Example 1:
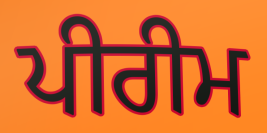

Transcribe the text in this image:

ਪੀਰੀਮ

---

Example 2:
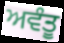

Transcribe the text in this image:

ਅਵੰਤੂ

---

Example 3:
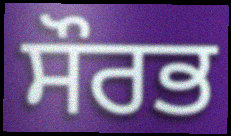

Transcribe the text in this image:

ਸੌਰਭ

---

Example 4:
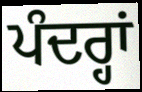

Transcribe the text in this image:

ਪੰਦਰ੍ਹਾਂ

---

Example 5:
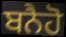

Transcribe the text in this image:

ਬਨੈਹੋ